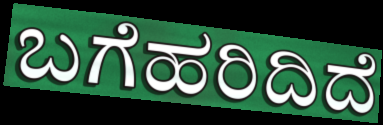
ಬಗೆಹರಿದಿದೆ